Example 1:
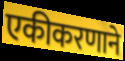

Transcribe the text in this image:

एकीकरणाने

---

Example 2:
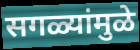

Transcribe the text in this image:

सगळ्यांमुळे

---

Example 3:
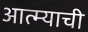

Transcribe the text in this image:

आत्म्याची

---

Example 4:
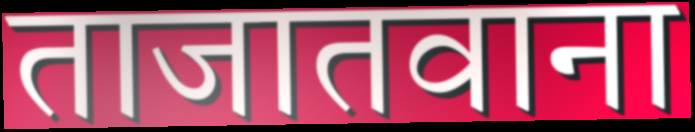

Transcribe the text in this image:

ताजातवाना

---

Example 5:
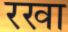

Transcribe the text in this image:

रखा